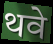
थवे